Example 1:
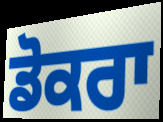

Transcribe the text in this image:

ਡੋਕਰਾ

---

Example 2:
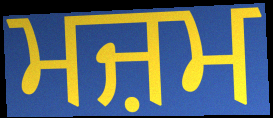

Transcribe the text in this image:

ਮਜ਼ਮ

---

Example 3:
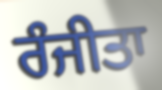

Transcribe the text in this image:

ਰੰਜੀਤਾ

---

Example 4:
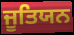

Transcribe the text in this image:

ਜੂਤਿਯਨ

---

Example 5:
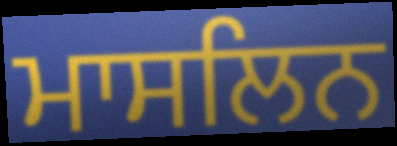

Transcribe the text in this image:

ਮਾਸਲਿਨ